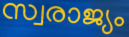
സ്വരാജ്യം